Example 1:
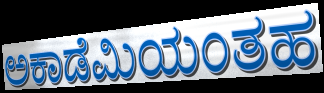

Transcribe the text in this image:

ಅಕಾಡೆಮಿಯಂತಹ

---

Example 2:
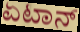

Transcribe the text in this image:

ಏಟಾನ್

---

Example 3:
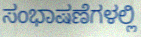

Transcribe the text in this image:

ಸಂಭಾಷಣೆಗಳಲ್ಲಿ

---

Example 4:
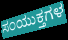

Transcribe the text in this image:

ಸಂಯುಕ್ತಗಳ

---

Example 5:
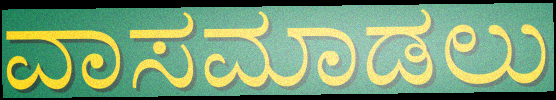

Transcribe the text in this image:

ವಾಸಮಾಡಲು